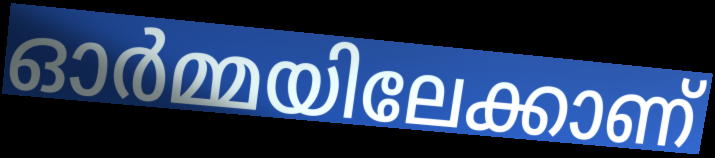
ഓർമ്മയിലേക്കാണ്